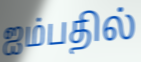
ஐம்பதில்